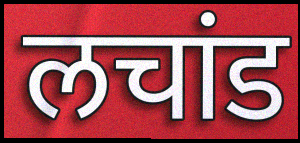
लचांड